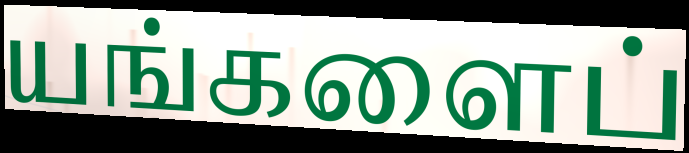
யங்களைப்